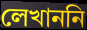
লেখাননি